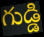
గుడ్డి